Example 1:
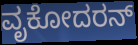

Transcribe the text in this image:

ವೃಕೋದರನ್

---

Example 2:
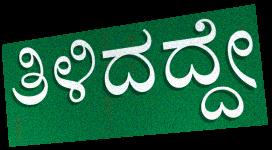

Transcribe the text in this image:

ತಿಳಿದದ್ದೇ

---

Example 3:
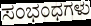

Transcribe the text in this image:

ಸಂಭಂಧಗಳು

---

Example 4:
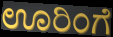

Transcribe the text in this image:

ಊರಿಂಗೆ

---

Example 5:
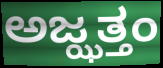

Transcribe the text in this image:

ಅಜ್ಝತ್ತಂ